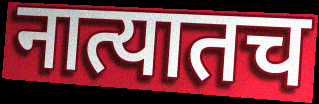
नात्यातच